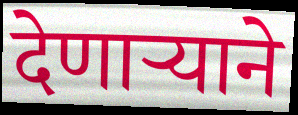
देणार्‍याने